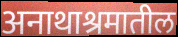
अनाथाश्रमातील